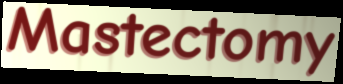
Mastectomy